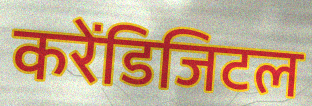
करेंडिजिटल